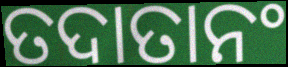
ତଦାତାନଂ